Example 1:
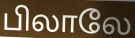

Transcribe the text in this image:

பிலாலே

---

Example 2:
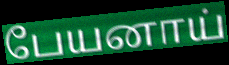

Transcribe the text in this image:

பேயனாய்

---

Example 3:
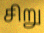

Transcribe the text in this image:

சிறு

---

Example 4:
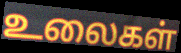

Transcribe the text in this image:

உலைகள்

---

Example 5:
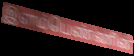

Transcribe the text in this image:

இளம்பெண்ணின்